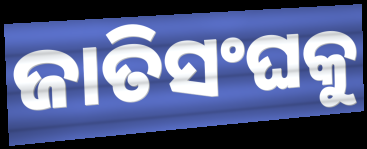
ଜାତିସଂଘକୁ